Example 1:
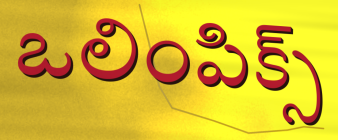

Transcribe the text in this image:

ఒలింపిక్స్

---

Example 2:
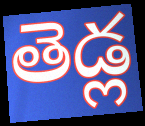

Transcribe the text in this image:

తెడ్ల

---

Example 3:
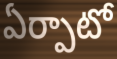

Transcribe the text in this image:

ఏర్పాటో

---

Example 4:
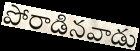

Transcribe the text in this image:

పోరాడినవాడు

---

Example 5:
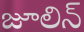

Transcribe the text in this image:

జూలిన్